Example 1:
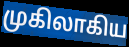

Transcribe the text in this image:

முகிலாகிய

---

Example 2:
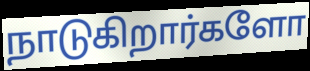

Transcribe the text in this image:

நாடுகிறார்களோ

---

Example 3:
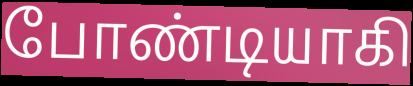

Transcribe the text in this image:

போண்டியாகி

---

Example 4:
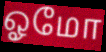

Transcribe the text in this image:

ஓமோ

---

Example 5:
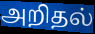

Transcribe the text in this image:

அறிதல்